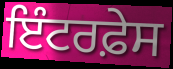
ਇੰਟਰਫ਼ੇਸ